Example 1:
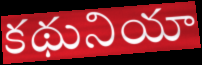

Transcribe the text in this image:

కథునియా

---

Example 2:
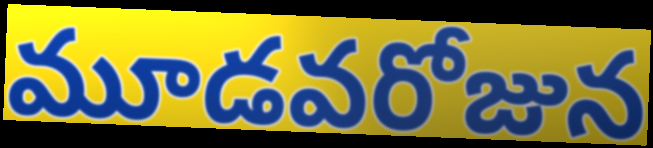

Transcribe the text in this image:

మూడవరోజున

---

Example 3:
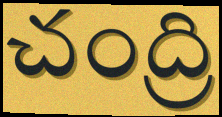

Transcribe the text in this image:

చంద్రి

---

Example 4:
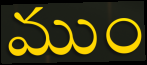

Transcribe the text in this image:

ముం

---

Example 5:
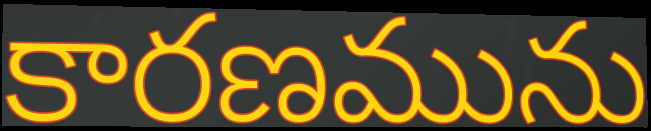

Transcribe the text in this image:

కారణమును